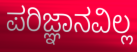
ಪರಿಜ್ಞಾನವಿಲ್ಲ